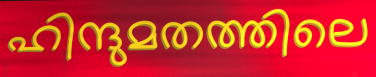
ഹിന്ദുമതത്തിലെ